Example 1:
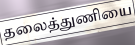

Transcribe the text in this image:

தலைத்துணியை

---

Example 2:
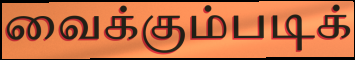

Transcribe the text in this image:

வைக்கும்படிக்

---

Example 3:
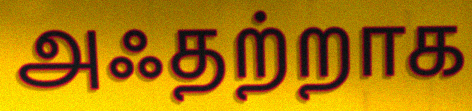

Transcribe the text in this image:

அஃதற்றாக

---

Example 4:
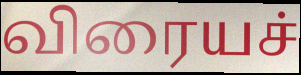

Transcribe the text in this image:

விரையச்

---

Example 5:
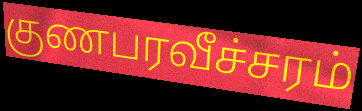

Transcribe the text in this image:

குணபரவீச்சரம்